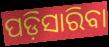
ପଡ଼ିସାରିବା